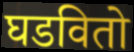
घडवितो